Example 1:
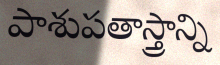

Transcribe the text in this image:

పాశుపతాస్త్రాన్ని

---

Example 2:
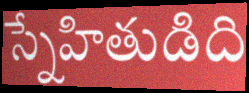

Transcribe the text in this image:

స్నేహితుడిది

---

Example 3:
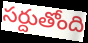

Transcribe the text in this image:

సర్దుతోంది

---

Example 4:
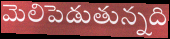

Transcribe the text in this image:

మెలిపెడుతున్నది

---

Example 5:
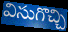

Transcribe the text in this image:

విసుగొచ్చి